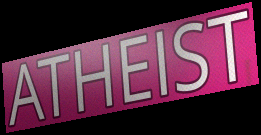
ATHEIST